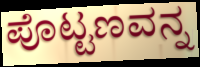
ಪೊಟ್ಟಣವನ್ನ